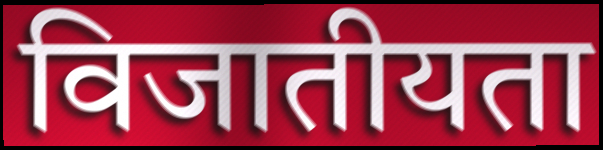
विजातीयता